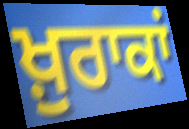
ਖ਼ੁਰਾਕਾਂ